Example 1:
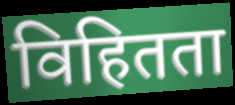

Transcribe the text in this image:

विहितता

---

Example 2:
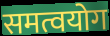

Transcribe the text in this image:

समत्वयोग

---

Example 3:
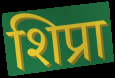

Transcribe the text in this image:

शिप्रा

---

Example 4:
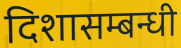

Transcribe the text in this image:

दिशासम्बन्धी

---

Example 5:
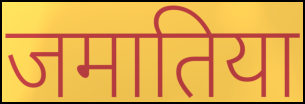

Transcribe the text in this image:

जमातिया